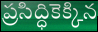
ప్రసిద్ధికెక్కిన